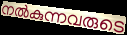
നൽകുന്നവരുടെ